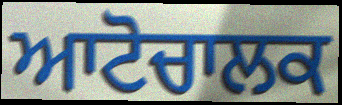
ਆਟੋਚਾਲਕ